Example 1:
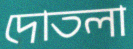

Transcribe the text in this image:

দোতলা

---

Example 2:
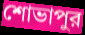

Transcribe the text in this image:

শোভাপুর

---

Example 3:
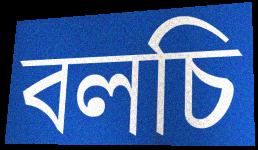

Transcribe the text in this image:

বলচি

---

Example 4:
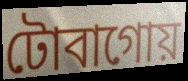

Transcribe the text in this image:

টোবাগোয়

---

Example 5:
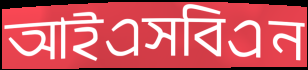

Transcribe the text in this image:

আইএসবিএন